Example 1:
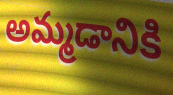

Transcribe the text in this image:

అమ్మడానికి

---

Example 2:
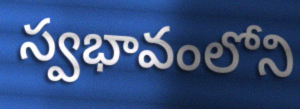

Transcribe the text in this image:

స్వభావంలోని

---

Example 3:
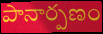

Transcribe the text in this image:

పానార్పణం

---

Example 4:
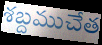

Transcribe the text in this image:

శబ్దముచేత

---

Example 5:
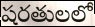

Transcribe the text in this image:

షరతులలో